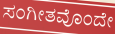
ಸಂಗೀತವೊಂದೇ